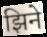
झिने